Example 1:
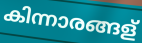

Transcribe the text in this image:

കിന്നാരങ്ങള്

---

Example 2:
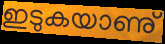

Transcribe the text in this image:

ഇടുകയാണു്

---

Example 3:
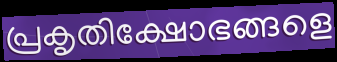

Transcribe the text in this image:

പ്രകൃതിക്ഷോഭങ്ങളെ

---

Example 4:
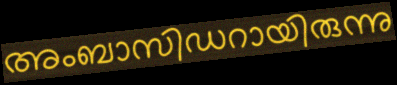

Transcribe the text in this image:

അംബാസിഡറായിരുന്നു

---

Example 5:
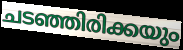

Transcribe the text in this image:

ചടഞ്ഞിരിക്കയും